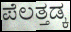
ಪೆಲತ್ತಡ್ಕ